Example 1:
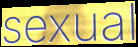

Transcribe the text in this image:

sexual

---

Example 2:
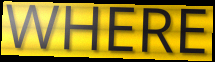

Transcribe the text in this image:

WHERE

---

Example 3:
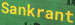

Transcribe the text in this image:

Sankrant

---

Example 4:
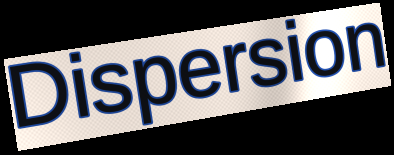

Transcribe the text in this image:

Dispersion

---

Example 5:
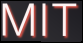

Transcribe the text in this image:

MIT